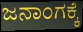
ಜನಾಂಗಕ್ಕೆ